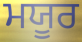
ਮਯੂਰ